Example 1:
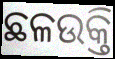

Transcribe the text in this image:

ଛଳଉକ୍ତି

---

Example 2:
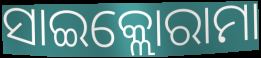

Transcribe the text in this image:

ସାଇକ୍ଲୋରାମା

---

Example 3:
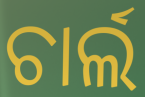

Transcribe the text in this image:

ଚାର୍ଲ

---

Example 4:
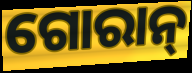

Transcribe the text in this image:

ଗୋରାନ୍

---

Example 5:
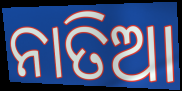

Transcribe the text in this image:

ନାତିଆ